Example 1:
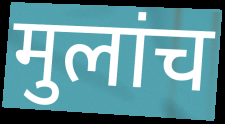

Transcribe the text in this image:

मुलांच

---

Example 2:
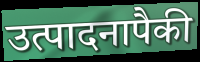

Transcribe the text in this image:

उत्पादनापैकी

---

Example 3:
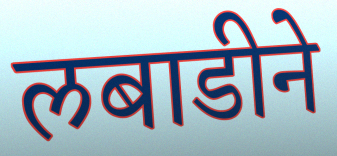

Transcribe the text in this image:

लबाडीने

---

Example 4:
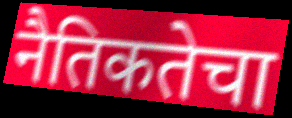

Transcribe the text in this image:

नैतिकतेचा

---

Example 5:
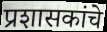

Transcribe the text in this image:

प्रशासकांचे